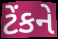
ટેંકને